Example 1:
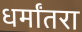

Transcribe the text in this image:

धर्मांतरा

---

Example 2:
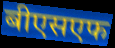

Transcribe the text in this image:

बीएसएफ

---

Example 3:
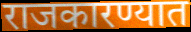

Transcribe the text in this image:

राजकारण्यात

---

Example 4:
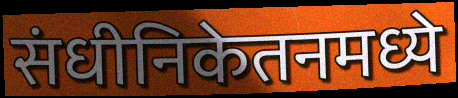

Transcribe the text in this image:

संधीनिकेतनमध्ये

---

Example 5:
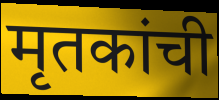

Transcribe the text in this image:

मृतकांची